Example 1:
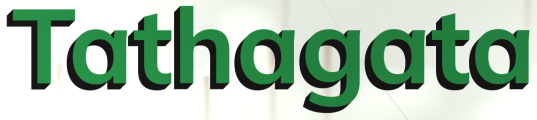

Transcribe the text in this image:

Tathagata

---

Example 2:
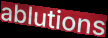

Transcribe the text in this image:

ablutions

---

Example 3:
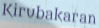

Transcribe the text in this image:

Kirubakaran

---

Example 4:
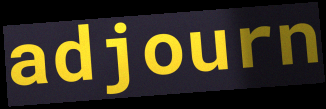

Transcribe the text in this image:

adjourn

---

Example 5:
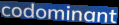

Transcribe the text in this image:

codominant